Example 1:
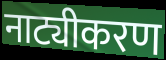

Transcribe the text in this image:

नाट्यीकरण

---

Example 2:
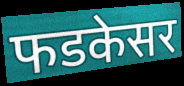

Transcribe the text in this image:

फडकेसर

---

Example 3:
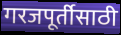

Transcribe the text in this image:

गरजपूर्तीसाठी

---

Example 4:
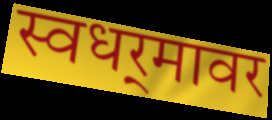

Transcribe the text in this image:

स्वधर्मावर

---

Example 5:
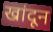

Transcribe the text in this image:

खांदून